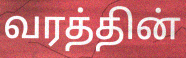
வரத்தின்